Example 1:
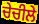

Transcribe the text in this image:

ਚੇਚੀਲੇ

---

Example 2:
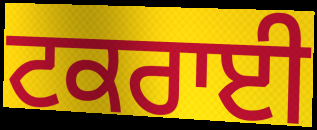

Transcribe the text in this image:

ਟਕਰਾਈ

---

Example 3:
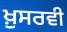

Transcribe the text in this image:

ਖ਼ੁਸਰਵੀ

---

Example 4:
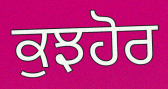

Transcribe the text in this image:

ਕੁਝਹੋਰ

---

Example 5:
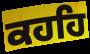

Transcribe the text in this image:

ਕਹਹਿ